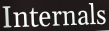
Internals